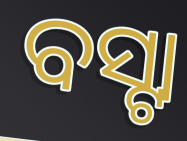
ବସ୍ଟା